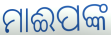
ମାଈପଙ୍କ